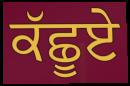
ਕੱਛੂਏ